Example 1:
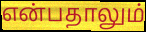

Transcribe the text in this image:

என்பதாலும்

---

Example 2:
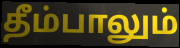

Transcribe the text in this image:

தீம்பாலும்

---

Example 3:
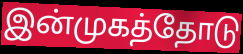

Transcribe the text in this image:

இன்முகத்தோடு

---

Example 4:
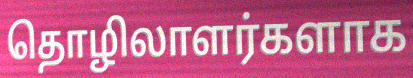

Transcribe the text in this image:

தொழிலாளர்களாக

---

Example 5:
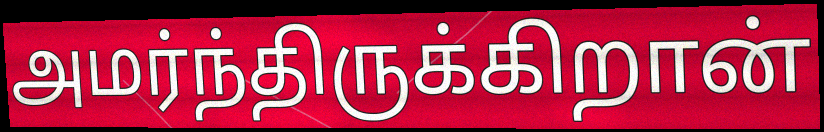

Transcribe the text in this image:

அமர்ந்திருக்கிறான்